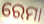
ରେମା